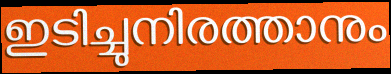
ഇടിച്ചുനിരത്താനും